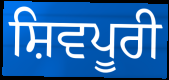
ਸ਼ਿਵਪੂਰੀ